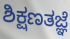
ಶಿಕ್ಷಣತಜ್ಞೆ